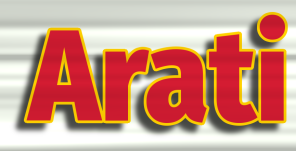
Arati